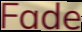
Fade